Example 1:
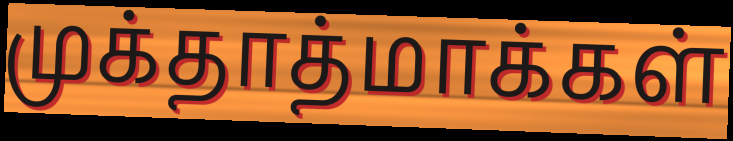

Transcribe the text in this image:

முக்தாத்மாக்கள்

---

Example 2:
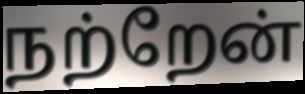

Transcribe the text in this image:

நற்றேன்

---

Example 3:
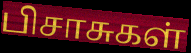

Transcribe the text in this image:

பிசாசுகள்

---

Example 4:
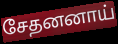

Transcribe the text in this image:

சேதனனாய்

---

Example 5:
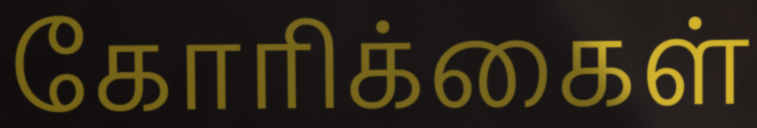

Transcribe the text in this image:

கோரிக்கைள்